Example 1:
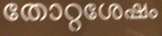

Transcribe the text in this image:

തോറ്റശേഷം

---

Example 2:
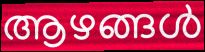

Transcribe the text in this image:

ആഴങ്ങൾ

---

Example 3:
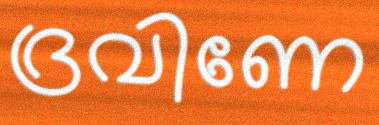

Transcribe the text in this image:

ദ്രവിണേ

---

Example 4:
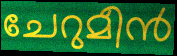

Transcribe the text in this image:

ചേറുമീൻ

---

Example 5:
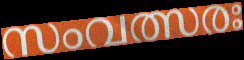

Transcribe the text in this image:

സംവത്സരഃ